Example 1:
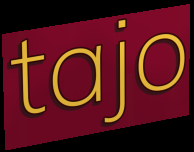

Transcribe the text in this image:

tajo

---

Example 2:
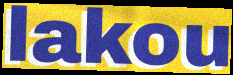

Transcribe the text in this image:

lakou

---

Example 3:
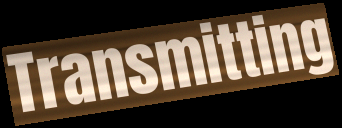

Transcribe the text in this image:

Transmitting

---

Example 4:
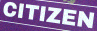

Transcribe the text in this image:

CITIZEN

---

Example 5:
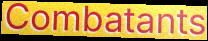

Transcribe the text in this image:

Combatants